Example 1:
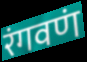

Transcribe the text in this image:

रंगवणं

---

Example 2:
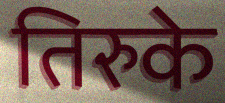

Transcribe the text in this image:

तिरुके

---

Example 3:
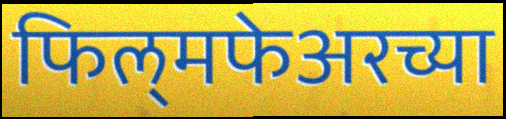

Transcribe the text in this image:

फिल्मफेअरच्या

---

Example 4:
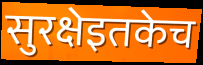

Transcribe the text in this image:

सुरक्षेइतकेच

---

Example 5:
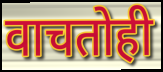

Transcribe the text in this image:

वाचतोही